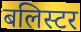
बलिस्टर